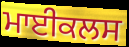
ਮਾਈਕਲਸ